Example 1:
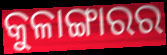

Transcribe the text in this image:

କୁଳାଙ୍ଗାରର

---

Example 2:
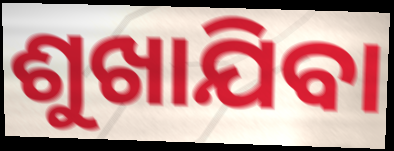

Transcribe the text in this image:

ଶୁଖାଯିବା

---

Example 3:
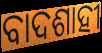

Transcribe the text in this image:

ବାଦଶାହୀ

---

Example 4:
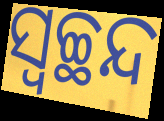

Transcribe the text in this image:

ସ୍ୱଚ୍ଛନ୍ଦ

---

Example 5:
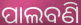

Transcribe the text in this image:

ପାଲବଣି